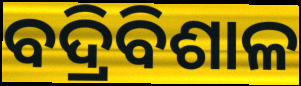
ବଦ୍ରିବିଶାଳ